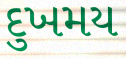
દુખમય